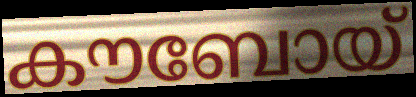
കൗബോയ്